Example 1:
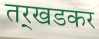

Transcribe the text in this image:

तर्खडकर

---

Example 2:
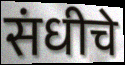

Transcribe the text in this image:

संधीचे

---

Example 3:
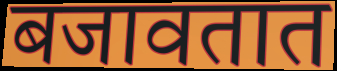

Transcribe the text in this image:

बजावतात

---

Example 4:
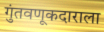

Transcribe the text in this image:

गुंतवणूकदाराला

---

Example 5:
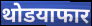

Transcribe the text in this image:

थोडयाफार